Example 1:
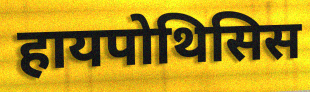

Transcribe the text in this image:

हायपोथिसिस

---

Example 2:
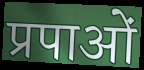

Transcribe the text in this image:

प्रपाओं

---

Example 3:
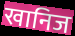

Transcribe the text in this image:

खानिज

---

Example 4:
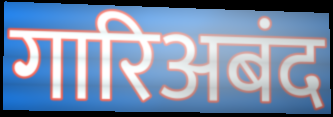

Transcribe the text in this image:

गारिअबंद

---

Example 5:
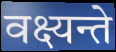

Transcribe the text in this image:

वक्ष्यन्ते